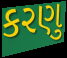
કરણુ